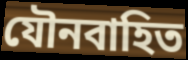
যৌনবাহিত